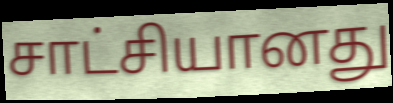
சாட்சியானது